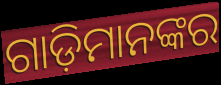
ଗାଡ଼ିମାନଙ୍କର